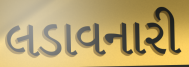
લડાવનારી